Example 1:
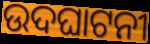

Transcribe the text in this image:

ଉଦଘାଟନୀ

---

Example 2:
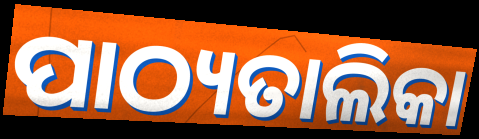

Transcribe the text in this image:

ପାଠ୍ୟତାଲିକା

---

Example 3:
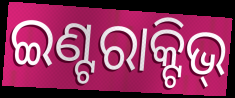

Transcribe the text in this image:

ଇଣ୍ଟରାକ୍ଟିଭ୍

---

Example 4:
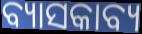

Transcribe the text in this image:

ବ୍ୟାସକାବ୍ୟ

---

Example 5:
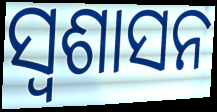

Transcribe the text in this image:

ସ୍ବଶାସନ